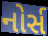
નોર્સ